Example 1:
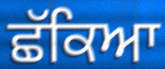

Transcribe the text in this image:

ਛੱਕਿਆ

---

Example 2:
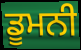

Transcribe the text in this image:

ਡੂਮਨੀ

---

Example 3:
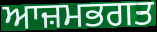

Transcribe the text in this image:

ਆਜ਼ਮਭਗਤ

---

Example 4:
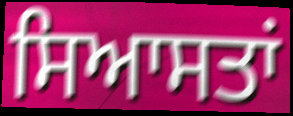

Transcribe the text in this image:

ਸਿਆਸਤਾਂ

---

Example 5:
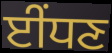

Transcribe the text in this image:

ਈਂਧਣ